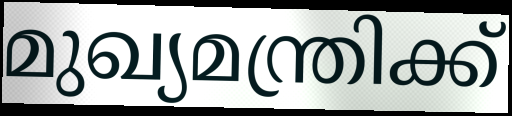
മുഖ്യമന്ത്രിക്ക്